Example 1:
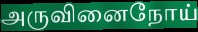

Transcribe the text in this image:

அருவினைநோய்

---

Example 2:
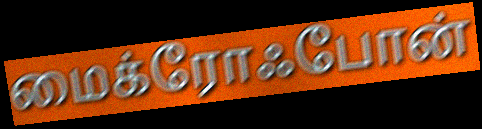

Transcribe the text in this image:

மைக்ரோஃபோன்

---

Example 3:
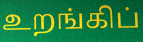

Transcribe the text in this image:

உறங்கிப்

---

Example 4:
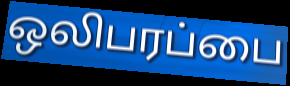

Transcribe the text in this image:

ஒலிபரப்பை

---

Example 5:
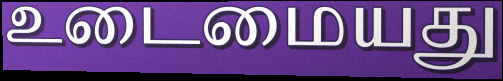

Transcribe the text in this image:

உடைமையது